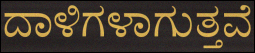
ದಾಳಿಗಳಾಗುತ್ತವೆ